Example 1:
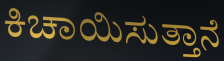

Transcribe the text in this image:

ಕಿಚಾಯಿಸುತ್ತಾನೆ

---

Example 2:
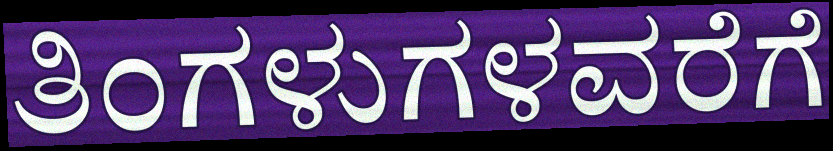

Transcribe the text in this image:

ತಿಂಗಳುಗಳವರೆಗೆ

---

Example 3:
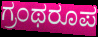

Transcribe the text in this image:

ಗ್ರಂಥರೂಪ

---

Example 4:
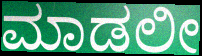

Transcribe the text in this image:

ಮಾಡಲೀ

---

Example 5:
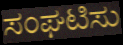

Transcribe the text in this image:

ಸಂಘಟಿಸು